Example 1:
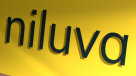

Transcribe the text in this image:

niluva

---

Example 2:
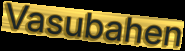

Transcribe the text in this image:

Vasubahen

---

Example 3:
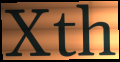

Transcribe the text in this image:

Xth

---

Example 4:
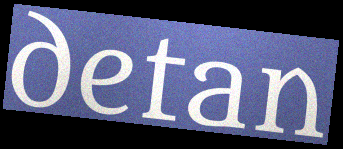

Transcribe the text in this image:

detan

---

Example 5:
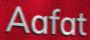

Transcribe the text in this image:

Aafat